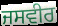
ਜਸਵੀਰ